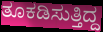
ತೂಕಡಿಸುತ್ತಿದ್ದ